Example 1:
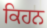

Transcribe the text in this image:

ਕਿਹਨ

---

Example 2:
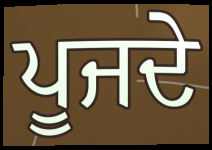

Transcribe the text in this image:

ਪੂਜਦੇ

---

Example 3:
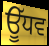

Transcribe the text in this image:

ਊੱਧਵ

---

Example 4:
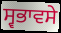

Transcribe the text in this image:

ਸ੍ਵਭਾਵਸੇ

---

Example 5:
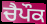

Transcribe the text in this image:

ਚੈਪੌਕ